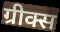
ग्रीक्स